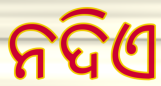
ନଦିଏ